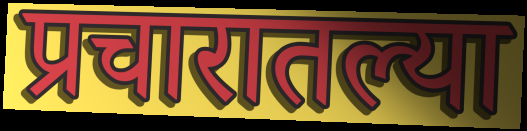
प्रचारातल्या